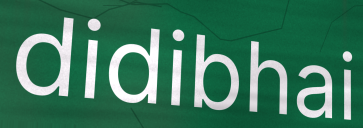
didibhai